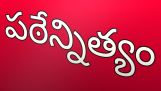
పఠేన్నిత్యం